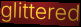
glittered